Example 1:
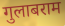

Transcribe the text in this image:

गुलाबराम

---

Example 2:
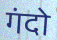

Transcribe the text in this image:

गंदो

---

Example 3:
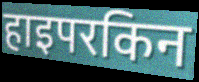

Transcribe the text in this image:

हाइपरकिन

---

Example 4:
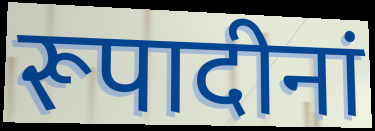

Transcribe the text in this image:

रूपादीनां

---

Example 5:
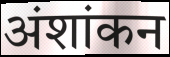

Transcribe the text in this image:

अंशांकन